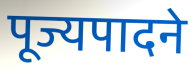
पूज्यपादने